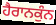
ਹੈਰਾਨਕੁੰਨ